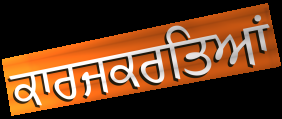
ਕਾਰਜਕਰਤਿਆਂ